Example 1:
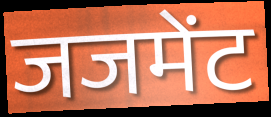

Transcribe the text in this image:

जजमेंट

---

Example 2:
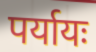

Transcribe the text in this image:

पर्यायः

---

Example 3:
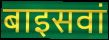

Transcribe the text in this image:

बाइसवां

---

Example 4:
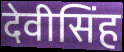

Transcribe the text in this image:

देवीसिंह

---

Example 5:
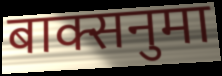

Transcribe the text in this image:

बाक्सनुमा